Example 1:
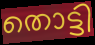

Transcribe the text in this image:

തൊട്ടി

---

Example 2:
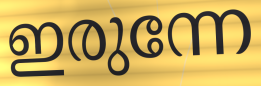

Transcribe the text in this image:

ഇരുന്നേ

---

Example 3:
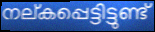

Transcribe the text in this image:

നല്കപ്പെട്ടിട്ടുണ്ട്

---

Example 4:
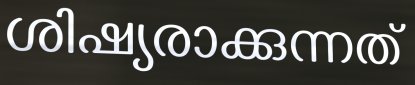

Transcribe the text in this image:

ശിഷ്യരാക്കുന്നത്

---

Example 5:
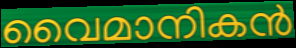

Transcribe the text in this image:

വൈമാനികൻ